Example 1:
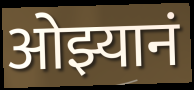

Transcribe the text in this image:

ओझ्यानं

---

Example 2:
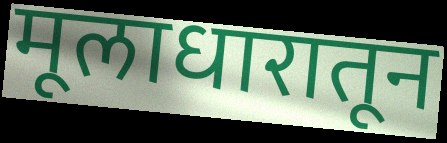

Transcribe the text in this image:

मूलाधारातून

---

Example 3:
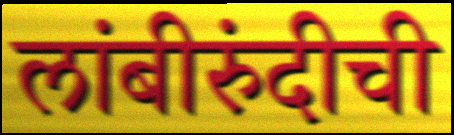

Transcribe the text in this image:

लांबीरुंदीची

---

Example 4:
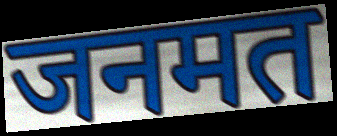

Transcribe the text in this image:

जनमत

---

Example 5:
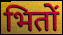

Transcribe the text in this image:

भितों